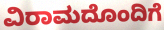
ವಿರಾಮದೊಂದಿಗೆ